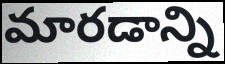
మారడాన్ని